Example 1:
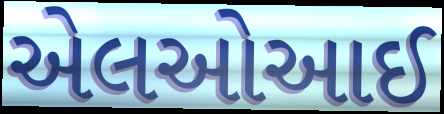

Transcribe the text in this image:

એલઓઆઈ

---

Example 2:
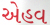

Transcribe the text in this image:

એહવ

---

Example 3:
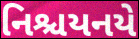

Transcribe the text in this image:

નિશ્ચયનયે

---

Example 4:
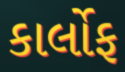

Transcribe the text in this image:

કાર્લોફ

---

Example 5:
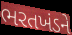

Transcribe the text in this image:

ભરતખંડને